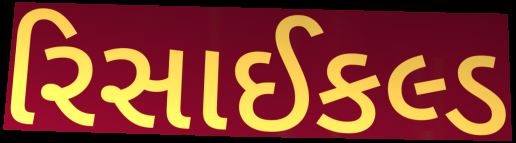
રિસાઈકલ્ડ